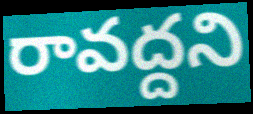
రావద్దని